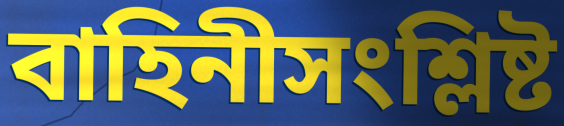
বাহিনীসংশ্লিষ্ট